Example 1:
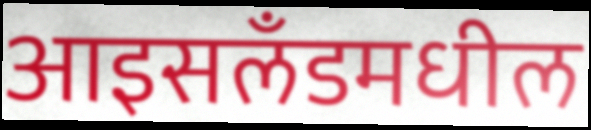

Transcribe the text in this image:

आइसलँडमधील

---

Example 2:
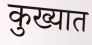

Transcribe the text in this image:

कुख्यात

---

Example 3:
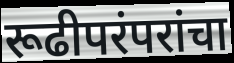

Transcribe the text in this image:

रूढीपरंपरांचा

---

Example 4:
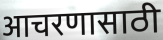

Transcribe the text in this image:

आचरणासाठी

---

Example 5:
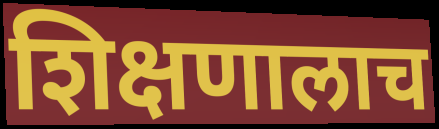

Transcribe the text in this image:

शिक्षणालाच